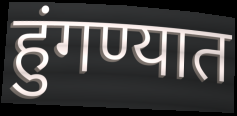
हुंगण्यात